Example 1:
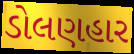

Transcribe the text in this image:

ડોલણહાર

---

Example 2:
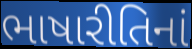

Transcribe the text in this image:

ભાષારીતિનાં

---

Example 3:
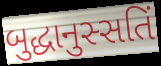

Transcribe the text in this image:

બુદ્ધાનુસ્સતિં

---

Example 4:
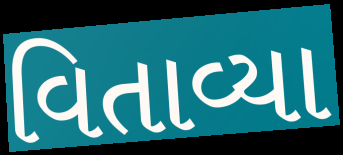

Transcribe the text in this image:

વિતાવ્યા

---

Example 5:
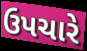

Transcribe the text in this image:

ઉપચારે